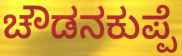
ಚೌಡನಕುಪ್ಪೆ